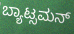
ಬ್ಯಾಟ್ಸಮನ್